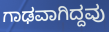
ಗಾಢವಾಗಿದ್ದವು